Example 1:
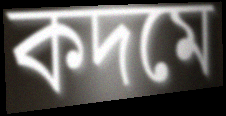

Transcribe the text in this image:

কদমে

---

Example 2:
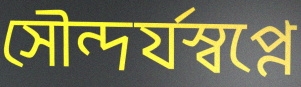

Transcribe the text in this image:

সৌন্দর্যস্বপ্নে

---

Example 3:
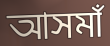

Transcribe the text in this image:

আসমাঁ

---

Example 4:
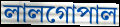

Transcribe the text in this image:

লালগোপাল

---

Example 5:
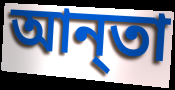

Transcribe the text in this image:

আন্‌তা